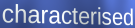
characterised